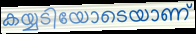
കയ്യടിയോടെയാണ്